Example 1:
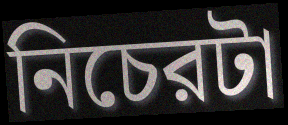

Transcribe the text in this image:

নিচেরটা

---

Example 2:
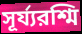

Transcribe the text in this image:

সূর্য্যরশ্মি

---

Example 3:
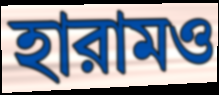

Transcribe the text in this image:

হারামও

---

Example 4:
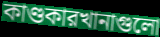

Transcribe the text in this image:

কাণ্ডকারখানাগুলো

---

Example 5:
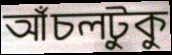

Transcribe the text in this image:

আঁচলটুকু